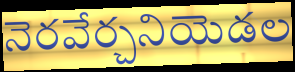
నెరవేర్చనియెడల